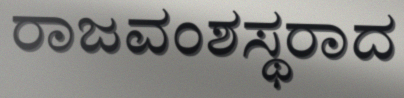
ರಾಜವಂಶಸ್ಥರಾದ